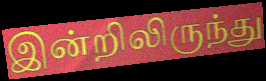
இன்றிலிருந்து